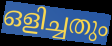
ഒളിച്ചതും